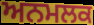
ਅਨਮਲਕ